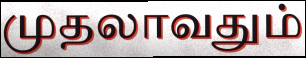
முதலாவதும்